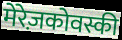
मेरेज़कोवस्की